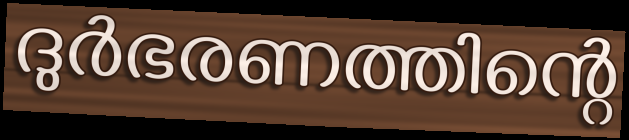
ദുർഭരണത്തിന്റെ